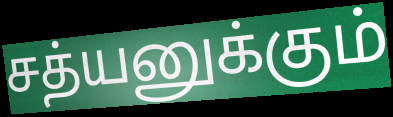
சத்யனுக்கும்